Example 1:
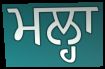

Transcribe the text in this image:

ਮਲ੍ਹਾ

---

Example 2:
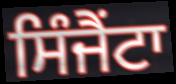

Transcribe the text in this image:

ਸਿੰਜੈਂਟਾ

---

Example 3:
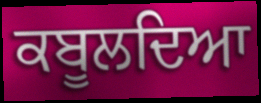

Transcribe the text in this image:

ਕਬੂਲਦਿਆ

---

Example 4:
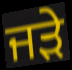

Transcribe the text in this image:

ਜੜੇ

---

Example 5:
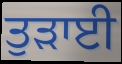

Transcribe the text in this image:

ਤੁੜਾਈ